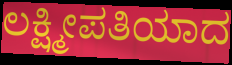
ಲಕ್ಷ್ಮೀಪತಿಯಾದ